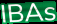
IBAs